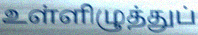
உள்ளிழுத்துப்